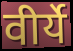
वीर्ये